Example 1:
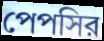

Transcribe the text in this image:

পেপসির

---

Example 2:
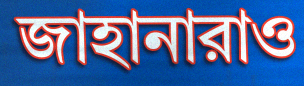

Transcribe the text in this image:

জাহানারাও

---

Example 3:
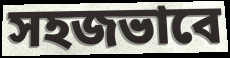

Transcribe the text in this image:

সহজভাবে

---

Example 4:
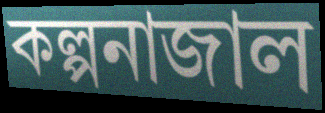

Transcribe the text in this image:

কল্পনাজাল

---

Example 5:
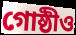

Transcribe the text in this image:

গোষ্ঠীও